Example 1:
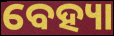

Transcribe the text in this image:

ବେହ୍ୟା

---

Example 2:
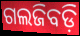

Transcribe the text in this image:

ଗଲଜିବଡ଼ି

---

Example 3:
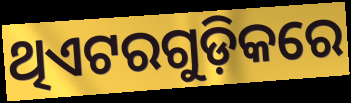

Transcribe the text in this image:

ଥିଏଟରଗୁଡ଼ିକରେ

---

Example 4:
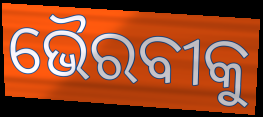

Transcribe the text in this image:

ଭୈରବୀକୁ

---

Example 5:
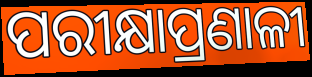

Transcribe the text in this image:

ପରୀକ୍ଷାପ୍ରଣାଳୀ